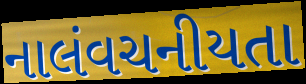
નાલંવચનીયતા